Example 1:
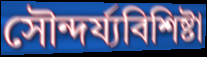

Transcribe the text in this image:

সৌন্দর্য্যবিশিষ্টা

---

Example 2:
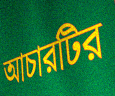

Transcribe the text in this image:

আচারটির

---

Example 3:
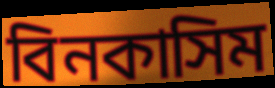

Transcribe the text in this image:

বিনকাসিম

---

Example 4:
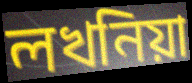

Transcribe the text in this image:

লখনিয়া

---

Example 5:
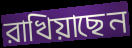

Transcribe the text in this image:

রাখিয়াছেন